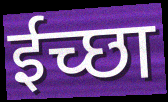
ईच्छा